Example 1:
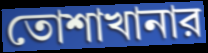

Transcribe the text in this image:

তোশাখানার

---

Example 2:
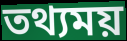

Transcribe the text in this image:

তথ্যময়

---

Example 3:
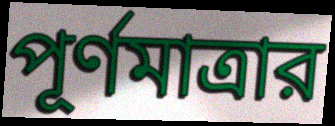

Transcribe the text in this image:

পূর্ণমাত্রার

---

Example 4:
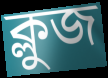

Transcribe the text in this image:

ক্লুজ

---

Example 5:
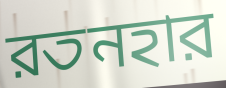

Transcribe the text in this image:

রতনহার